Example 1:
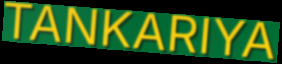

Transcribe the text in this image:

TANKARIYA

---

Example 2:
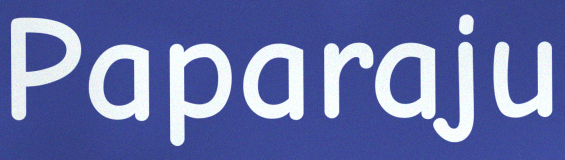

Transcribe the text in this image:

Paparaju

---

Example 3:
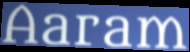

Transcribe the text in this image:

Aaram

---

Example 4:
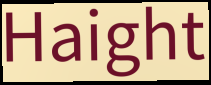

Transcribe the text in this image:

Haight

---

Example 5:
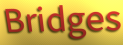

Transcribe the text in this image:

Bridges